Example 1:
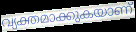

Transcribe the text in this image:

വ്യക്തമാക്കുകയാണ്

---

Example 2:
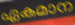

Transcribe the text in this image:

ഏകമാന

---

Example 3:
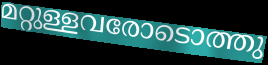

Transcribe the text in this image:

മറ്റുള്ളവരോടൊത്തു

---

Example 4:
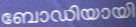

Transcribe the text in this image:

ബോഡിയായി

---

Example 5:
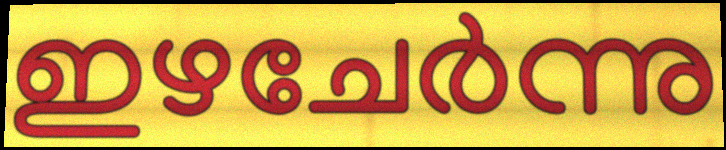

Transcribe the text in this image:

ഇഴചേർന്നു